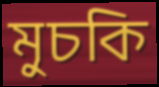
মুচকি